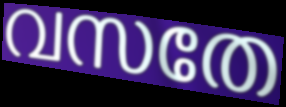
വസതേ